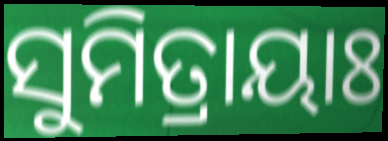
ସୁମିତ୍ରାୟାଃ